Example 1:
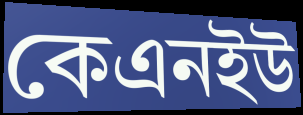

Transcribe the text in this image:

কেএনইউ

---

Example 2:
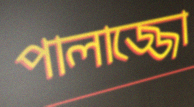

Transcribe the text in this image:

পালাজ্জো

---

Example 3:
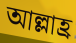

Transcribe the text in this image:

আল্লাহ্র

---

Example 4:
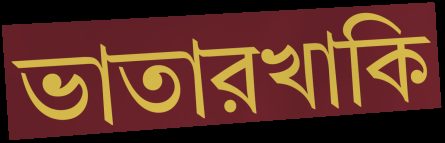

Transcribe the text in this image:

ভাতারখাকি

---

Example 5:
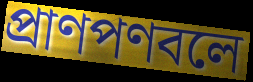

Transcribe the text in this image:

প্রাণপণবলে